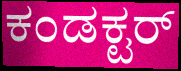
ಕಂಡಕ್ಟರ್